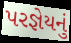
પરજ્ઞેયનું